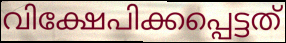
വിക്ഷേപിക്കപ്പെട്ടത്